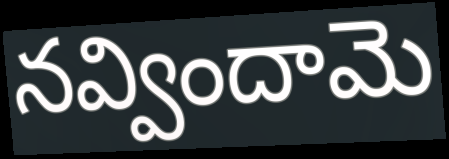
నవ్విందామె